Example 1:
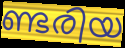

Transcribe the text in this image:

ണ്ടരിയ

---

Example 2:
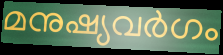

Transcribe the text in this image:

മനുഷ്യവർഗം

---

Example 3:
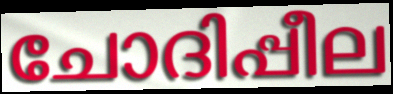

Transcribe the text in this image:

ചോദിപ്പീല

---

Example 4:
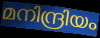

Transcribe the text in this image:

മനിന്ദ്രിയം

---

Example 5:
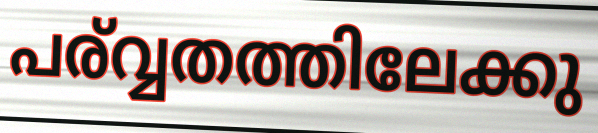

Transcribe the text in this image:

പര്വ്വതത്തിലേക്കു